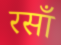
रसाँ